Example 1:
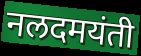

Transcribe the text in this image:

नलदमयंती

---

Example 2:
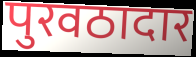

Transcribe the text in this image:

पुरवठादार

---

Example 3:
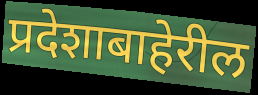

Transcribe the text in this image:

प्रदेशाबाहेरील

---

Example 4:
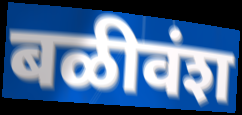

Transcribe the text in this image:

बळीवंश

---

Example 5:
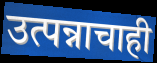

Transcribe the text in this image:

उत्पन्नाचाही